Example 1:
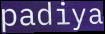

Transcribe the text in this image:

padiya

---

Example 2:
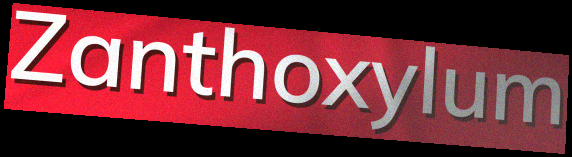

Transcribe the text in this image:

Zanthoxylum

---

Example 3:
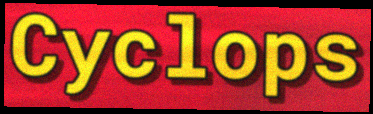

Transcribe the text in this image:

Cyclops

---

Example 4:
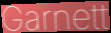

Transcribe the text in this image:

Garnett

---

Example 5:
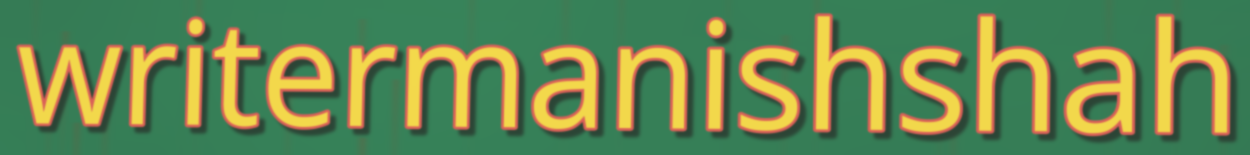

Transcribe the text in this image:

writermanishshah